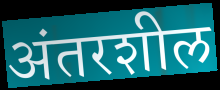
अंतरशील